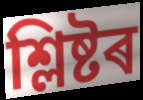
শ্লিষ্টৰ